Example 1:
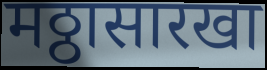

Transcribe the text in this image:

मठ्ठासारखा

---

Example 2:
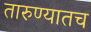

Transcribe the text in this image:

तारुण्यातच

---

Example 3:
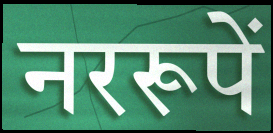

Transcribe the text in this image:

नररूपें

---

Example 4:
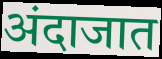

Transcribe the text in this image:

अंदाजात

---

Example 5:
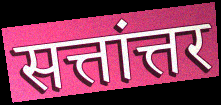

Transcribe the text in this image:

सत्तांत्तर